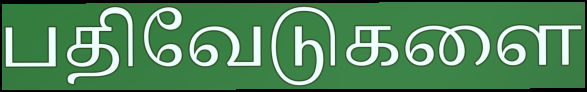
பதிவேடுகளை